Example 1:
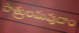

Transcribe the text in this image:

పాత్రులమవుదాం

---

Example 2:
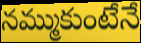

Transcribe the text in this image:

నమ్ముకుంటేనే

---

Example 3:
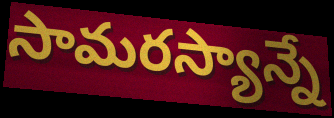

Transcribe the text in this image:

సామరస్యాన్నే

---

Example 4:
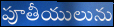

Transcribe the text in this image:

పూతీయులును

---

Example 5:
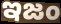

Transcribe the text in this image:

ఇజం